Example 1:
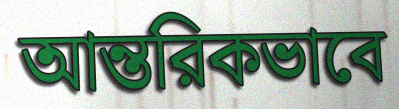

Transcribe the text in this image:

আন্তরিকভাবে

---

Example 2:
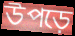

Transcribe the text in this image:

উপড়ে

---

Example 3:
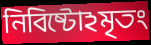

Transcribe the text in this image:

নিবিষ্টোঽমৃতং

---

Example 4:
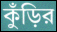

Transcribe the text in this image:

কুঁড়ির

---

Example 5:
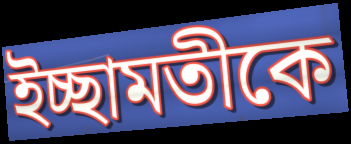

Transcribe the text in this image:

ইচ্ছামতীকে